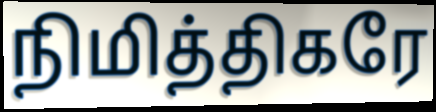
நிமித்திகரே